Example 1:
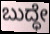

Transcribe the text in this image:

ಬುದ್ಧೇ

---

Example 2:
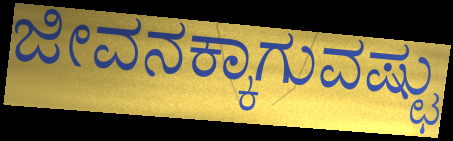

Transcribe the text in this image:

ಜೀವನಕ್ಕಾಗುವಷ್ಟು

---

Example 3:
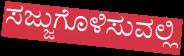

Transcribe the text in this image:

ಸಜ್ಜುಗೊಳಿಸುವಲ್ಲಿ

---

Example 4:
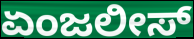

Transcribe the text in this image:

ಏಂಜಲೀಸ್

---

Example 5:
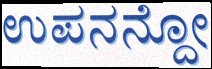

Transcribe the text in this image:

ಉಪನನ್ದೋ